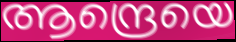
ആന്ദ്രെയെ